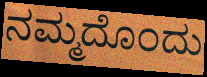
ನಮ್ಮದೊಂದು